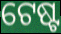
ଟେଷ୍ଟ